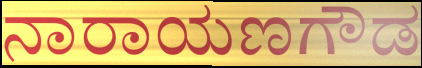
ನಾರಾಯಣಗೌಡ